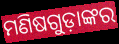
ମଣିଷଗୁଡ଼ାଙ୍କର